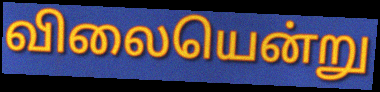
விலையென்று